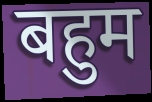
बहुम